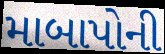
માબાપોની